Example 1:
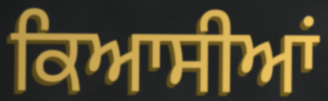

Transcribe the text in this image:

ਕਿਆਸੀਆਂ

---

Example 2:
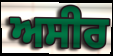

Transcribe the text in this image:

ਅਸੀਰ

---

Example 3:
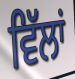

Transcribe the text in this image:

ਵਿੱਲਾਂ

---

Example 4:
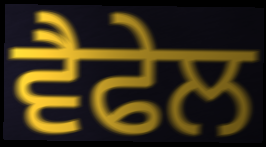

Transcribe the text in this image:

ਵੈਫੇਲ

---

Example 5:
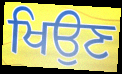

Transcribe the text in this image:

ਖਿਉਣ